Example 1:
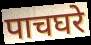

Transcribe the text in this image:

पाचघरे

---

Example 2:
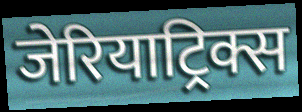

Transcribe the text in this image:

जेरियाट्रिक्स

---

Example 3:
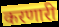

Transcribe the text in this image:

करणारी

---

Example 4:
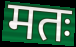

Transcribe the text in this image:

मतः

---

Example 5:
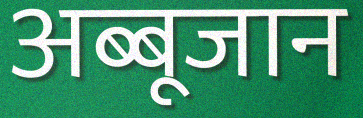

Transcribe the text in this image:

अब्बूजान